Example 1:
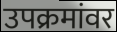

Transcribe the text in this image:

उपक्रमांवर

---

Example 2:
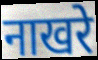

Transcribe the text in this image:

नाखरे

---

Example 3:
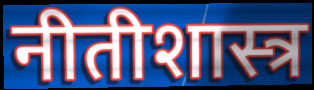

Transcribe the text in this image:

नीतीशास्त्र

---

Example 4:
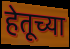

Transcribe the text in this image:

हेतूच्या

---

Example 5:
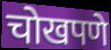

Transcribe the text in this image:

चोखपणे